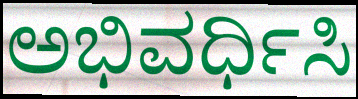
ಅಭಿವರ್ಧಿಸಿ